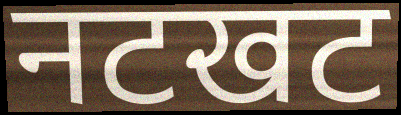
नटखट